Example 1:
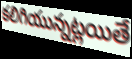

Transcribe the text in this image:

కలిగియున్నట్లయితే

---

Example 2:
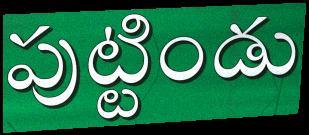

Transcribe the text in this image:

పుట్టిండు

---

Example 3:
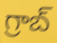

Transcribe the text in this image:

గ్రాబ్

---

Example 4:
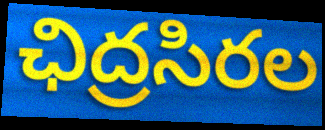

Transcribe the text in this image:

ఛిద్రసిరల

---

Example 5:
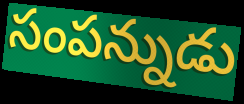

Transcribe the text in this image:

సంపన్నుడు